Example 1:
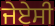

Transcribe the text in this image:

ਜੇਏਸੀ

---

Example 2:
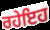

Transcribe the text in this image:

ਰਹੇਇਹ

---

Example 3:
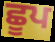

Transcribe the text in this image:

ਛੂਪ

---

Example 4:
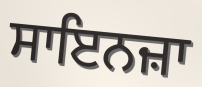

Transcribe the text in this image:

ਸਾਇਨਜ਼ਾ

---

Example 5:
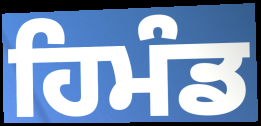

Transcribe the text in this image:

ਹਿਮੰਡ